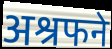
अश्रफने